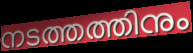
നടത്തത്തിനും